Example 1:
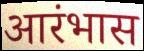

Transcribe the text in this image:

आरंभास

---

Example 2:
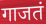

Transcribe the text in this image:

गाजतं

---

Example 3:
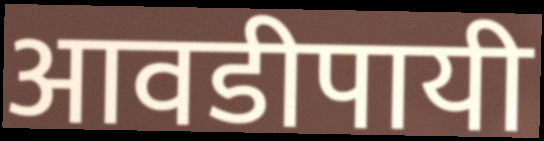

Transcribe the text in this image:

आवडीपायी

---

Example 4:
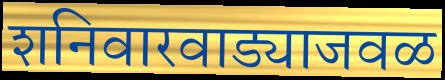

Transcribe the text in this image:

शनिवारवाड्याजवळ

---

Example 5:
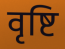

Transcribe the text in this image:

वृष्टि